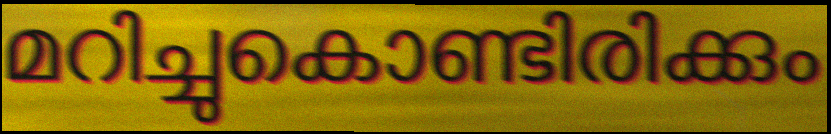
മറിച്ചുകൊണ്ടിരിക്കും